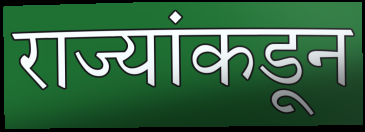
राज्यांकडून